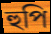
হুপি